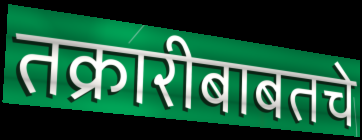
तक्रारीबाबतचे